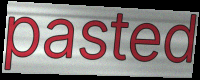
pasted